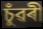
চুঁৱৰী